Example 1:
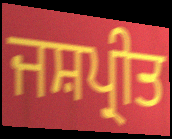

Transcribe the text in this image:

ਜਸ਼ਪ੍ਰੀਤ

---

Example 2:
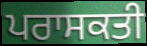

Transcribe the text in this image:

ਪਰਾਸਕਤੀ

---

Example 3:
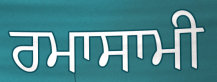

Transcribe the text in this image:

ਰਮਾਸਾਮੀ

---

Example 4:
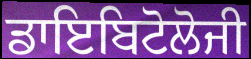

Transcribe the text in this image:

ਡਾਇਬਿਟੋਲੋਜੀ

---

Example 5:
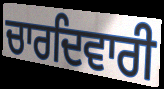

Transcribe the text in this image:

ਚਾਰਦਿਵਾਰੀ